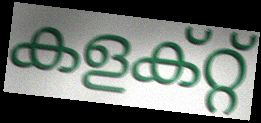
കളക്റ്റ്